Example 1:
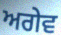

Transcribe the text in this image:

ਅਗੇਵ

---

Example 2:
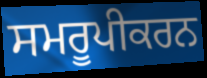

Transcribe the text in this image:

ਸਮਰੂਪੀਕਰਨ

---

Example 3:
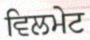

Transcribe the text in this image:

ਵਿਲਮੇਟ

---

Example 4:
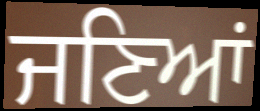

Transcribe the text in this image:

ਜਣਿਆਂ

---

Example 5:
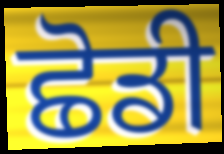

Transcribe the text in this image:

ਛੋਡੀ